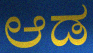
ಆಡ